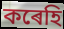
কৰেহি